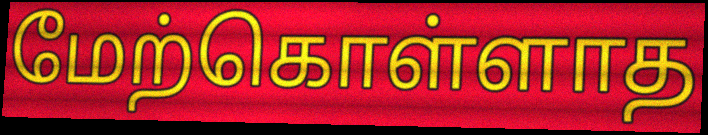
மேற்கொள்ளாத